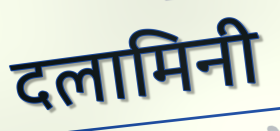
दलामिनी